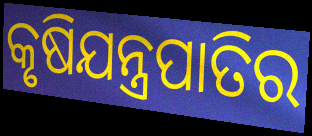
କୃଷିଯନ୍ତ୍ରପାତିର